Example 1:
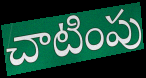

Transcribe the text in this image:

చాటింపు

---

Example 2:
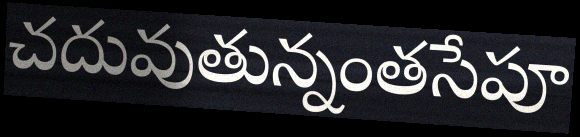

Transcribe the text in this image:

చదువుతున్నంతసేపూ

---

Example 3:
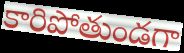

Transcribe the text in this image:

కారిపోతుండగా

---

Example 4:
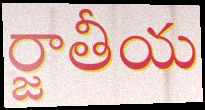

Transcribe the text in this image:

ర్జాతీయ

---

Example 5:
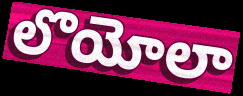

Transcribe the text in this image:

లొయోలా